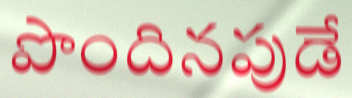
పొందినపుడే